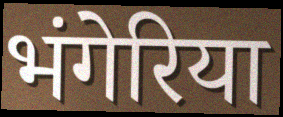
भंगेरिया